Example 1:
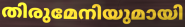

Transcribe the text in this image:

തിരുമേനിയുമായി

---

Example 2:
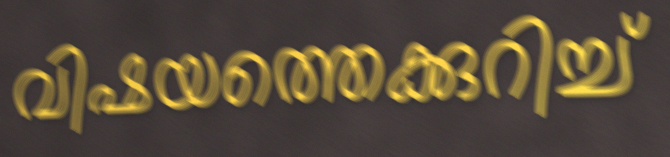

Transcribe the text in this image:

വിഷയത്തെക്കുറിച്ച്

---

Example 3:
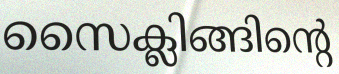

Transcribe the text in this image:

സൈക്ലിങ്ങിന്റെ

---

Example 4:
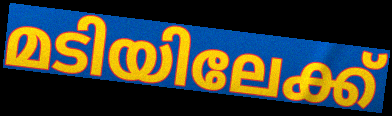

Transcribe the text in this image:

മടിയിലേക്ക്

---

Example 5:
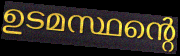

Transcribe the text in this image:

ഉടമസ്ഥന്റെ